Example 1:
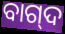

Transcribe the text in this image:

ବାଗ୍‌ଦ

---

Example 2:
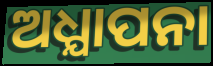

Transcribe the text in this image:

ଅଧ୍ଯାପନା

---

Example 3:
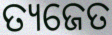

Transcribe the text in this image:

ତ୍ୟଜେତ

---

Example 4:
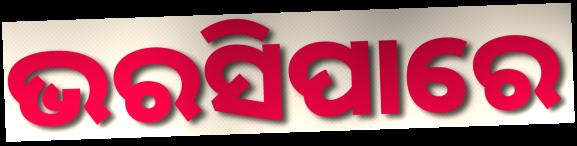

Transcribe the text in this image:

ଭରସିପାରେ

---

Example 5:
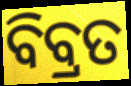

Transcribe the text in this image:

ବିବ୍ରତ